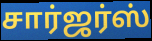
சார்ஜர்ஸ்